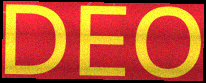
DEO